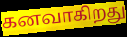
கனவாகிறது